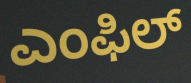
ಎಂಫಿಲ್